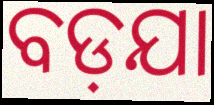
ବଡ଼ଯା